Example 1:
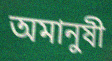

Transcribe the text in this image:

অমানুষী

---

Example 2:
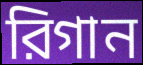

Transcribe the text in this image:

রিগান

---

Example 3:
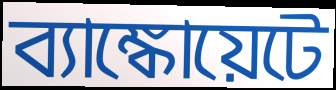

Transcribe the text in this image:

ব্যাঙ্কোয়েটে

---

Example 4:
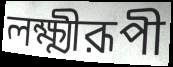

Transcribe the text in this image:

লক্ষ্মীরূপী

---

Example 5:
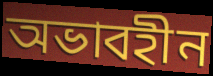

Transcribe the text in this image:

অভাবহীন